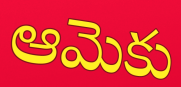
ఆమెకు